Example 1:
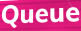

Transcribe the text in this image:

Queue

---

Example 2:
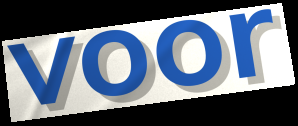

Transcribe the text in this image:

voor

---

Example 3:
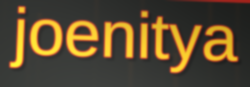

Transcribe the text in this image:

joenitya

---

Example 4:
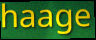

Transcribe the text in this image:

haage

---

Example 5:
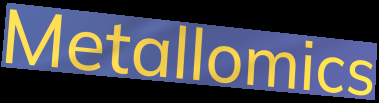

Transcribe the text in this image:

Metallomics